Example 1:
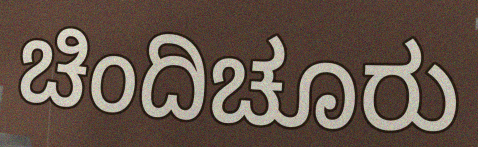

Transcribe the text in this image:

ಚಿಂದಿಚೂರು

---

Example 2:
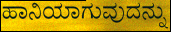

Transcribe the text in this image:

ಹಾನಿಯಾಗುವುದನ್ನು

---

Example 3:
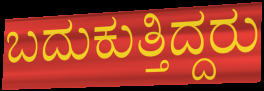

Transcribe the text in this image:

ಬದುಕುತ್ತಿದ್ದರು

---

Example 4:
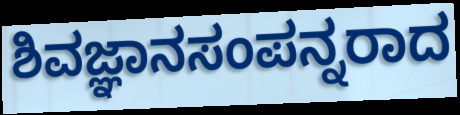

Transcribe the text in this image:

ಶಿವಜ್ಞಾನಸಂಪನ್ನರಾದ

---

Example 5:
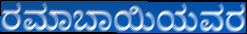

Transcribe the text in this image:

ರಮಾಬಾಯಿಯವರ